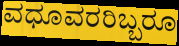
ವಧೂವರರಿಬ್ಬರೂ